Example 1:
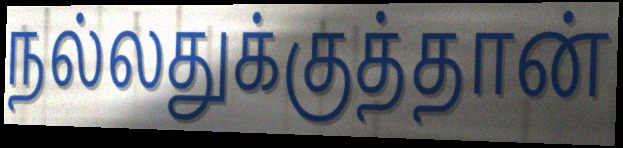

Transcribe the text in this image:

நல்லதுக்குத்தான்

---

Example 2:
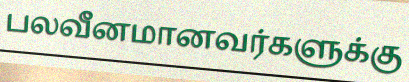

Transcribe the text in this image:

பலவீனமானவர்களுக்கு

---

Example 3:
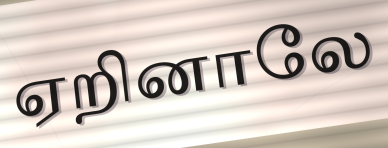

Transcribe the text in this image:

ஏறினாலே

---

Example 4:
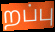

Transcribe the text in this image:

றப்பு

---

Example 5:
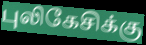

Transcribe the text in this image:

புலிகேசிக்கு